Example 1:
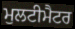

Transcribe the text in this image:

ਮੁਲਟੀਮੈਟਰ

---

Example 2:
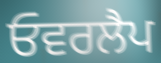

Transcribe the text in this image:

ਓਵਰਲੈਪ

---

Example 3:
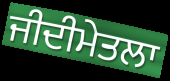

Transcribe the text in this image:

ਜੀਦੀਮੇਤਲਾ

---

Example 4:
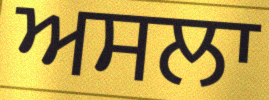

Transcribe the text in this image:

ਅਸਲਾ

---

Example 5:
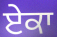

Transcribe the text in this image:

ਏਕਾ